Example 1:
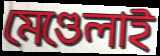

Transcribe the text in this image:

মেণ্ডেলাই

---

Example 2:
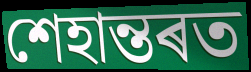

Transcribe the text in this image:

শেহান্তৰত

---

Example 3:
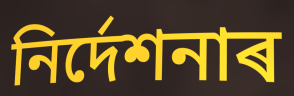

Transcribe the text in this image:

নিৰ্দেশনাৰ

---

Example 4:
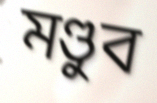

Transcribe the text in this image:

মণ্ডুব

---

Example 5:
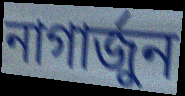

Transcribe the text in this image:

নাগাৰ্জুন